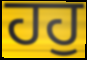
ਹਹੁ